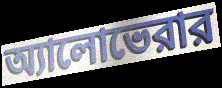
অ্যালোভেরার